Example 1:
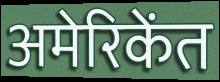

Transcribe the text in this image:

अमेरिकेंत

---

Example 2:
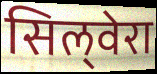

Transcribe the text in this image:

सिल्वेरा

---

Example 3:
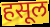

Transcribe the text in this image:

हसूल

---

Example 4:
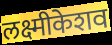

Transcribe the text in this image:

लक्ष्मीकेशव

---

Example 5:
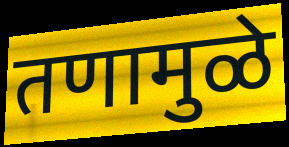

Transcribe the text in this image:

तणामुळे